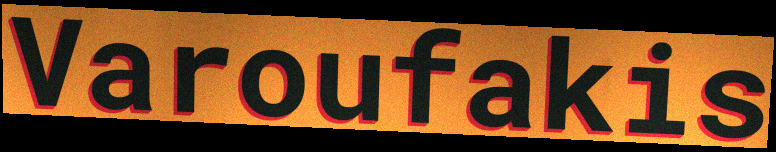
Varoufakis